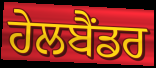
ਹੇਲਬੈਂਡਰ